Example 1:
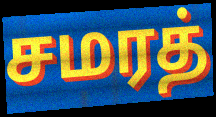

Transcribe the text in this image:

சமரத்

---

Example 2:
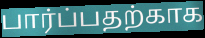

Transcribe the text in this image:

பார்ப்பதற்காக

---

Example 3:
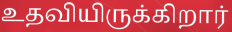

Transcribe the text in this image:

உதவியிருக்கிறார்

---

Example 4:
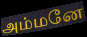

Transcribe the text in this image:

அம்மனே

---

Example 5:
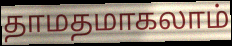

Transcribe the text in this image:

தாமதமாகலாம்